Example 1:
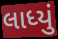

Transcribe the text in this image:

લાધ્યું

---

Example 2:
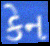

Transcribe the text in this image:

કેન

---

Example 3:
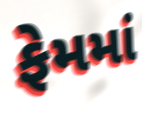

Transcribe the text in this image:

ફેમમાં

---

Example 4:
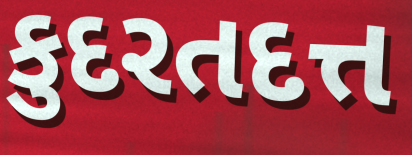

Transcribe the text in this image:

કુદરતદત્ત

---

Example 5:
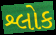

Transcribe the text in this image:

શ્લોક